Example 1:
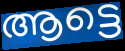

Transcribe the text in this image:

ആട്ടെ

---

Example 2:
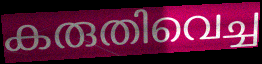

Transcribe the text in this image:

കരുതിവെച്ച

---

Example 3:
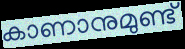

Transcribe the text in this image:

കാണാനുമുണ്ട്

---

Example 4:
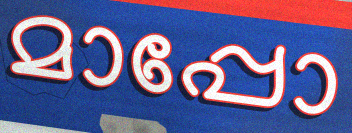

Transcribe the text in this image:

മാപ്പോ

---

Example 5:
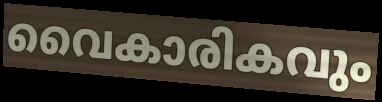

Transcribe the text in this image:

വൈകാരികവും